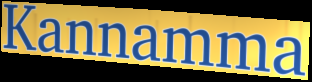
Kannamma